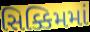
સિક્કિમમાં